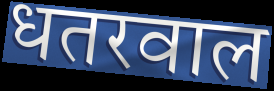
धतरवाल